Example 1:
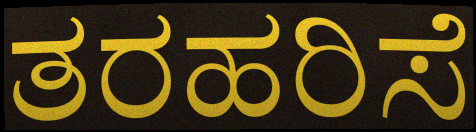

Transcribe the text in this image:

ತರಹರಿಸೆ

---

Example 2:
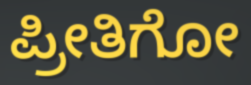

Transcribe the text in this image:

ಪ್ರೀತಿಗೋ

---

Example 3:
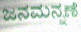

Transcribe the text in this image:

ಜನಮನ್ನಣೆ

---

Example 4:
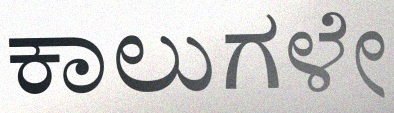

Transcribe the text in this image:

ಕಾಲುಗಳೇ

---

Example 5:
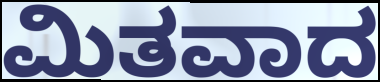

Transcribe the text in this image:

ಮಿತವಾದ